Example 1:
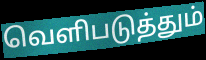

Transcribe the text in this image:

வெளிபடுத்தும்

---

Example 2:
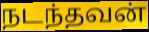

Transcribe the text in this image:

நடந்தவன்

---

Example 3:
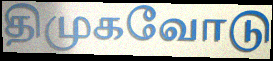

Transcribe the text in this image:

திமுகவோடு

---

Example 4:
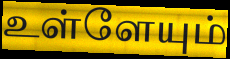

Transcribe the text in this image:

உள்ளேயும்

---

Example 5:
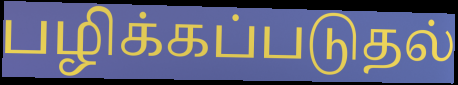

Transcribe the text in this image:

பழிக்கப்படுதல்